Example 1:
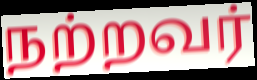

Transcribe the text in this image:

நற்றவர்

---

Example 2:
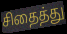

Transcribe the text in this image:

சிதைத்து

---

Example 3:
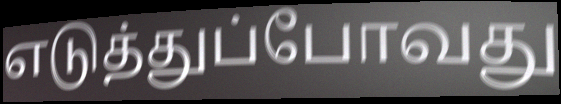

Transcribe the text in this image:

எடுத்துப்போவது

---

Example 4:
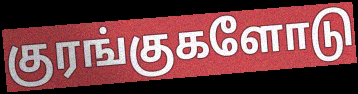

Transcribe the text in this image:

குரங்குகளோடு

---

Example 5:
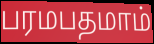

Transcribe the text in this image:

பரமபதமாம்